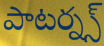
పాటర్న్స్